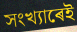
সংখ্যাৰেই